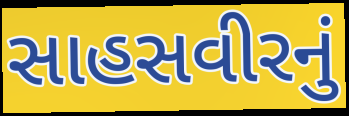
સાહસવીરનું